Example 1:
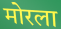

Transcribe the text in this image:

मोरला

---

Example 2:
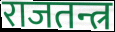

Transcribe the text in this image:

राजतन्त्र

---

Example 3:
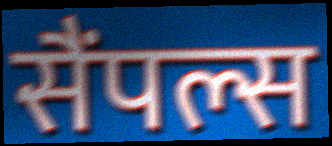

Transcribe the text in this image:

सैंपल्स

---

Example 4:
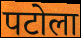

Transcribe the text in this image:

पटोला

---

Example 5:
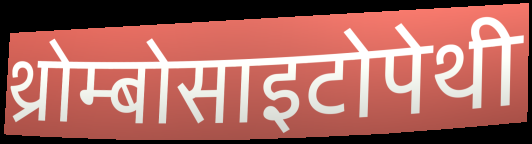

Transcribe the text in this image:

थ्रोम्बोसाइटोपेथी